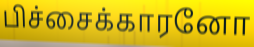
பிச்சைக்காரனோ